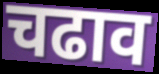
चढाव